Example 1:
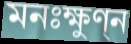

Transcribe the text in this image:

মনঃক্ষুণ্ন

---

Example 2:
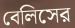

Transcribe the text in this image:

বেলিসের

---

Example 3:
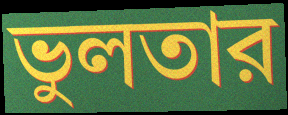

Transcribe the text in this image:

ভুলতার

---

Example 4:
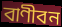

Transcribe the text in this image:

বাণীবন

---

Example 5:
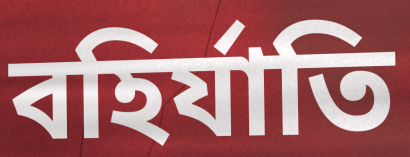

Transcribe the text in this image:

বহির্যাতি